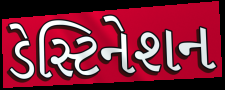
ડેસ્ટિનેશન